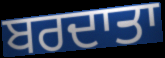
ਬਰਦਾਤਾ